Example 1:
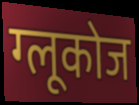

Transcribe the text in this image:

ग्लूकोज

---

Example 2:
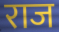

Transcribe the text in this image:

राज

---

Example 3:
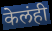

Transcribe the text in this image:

केलंही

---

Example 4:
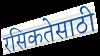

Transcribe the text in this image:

रसिकतेसाठी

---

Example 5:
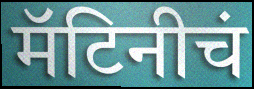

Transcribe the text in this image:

मॅटिनीचं